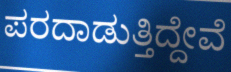
ಪರದಾಡುತ್ತಿದ್ದೇವೆ